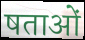
षताओं